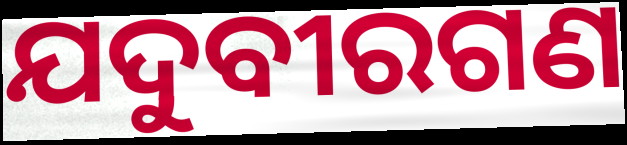
ଯଦୁବୀରଗଣ